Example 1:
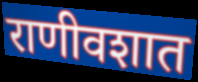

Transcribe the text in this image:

राणीवशात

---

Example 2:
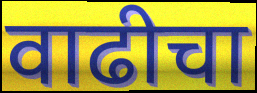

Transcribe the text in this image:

वाढीचा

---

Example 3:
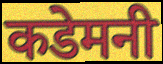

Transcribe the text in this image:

कडेमनी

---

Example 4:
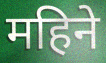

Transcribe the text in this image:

महिने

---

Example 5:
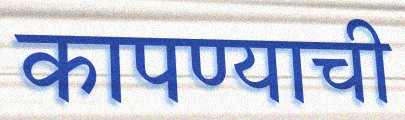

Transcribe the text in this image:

कापण्याची